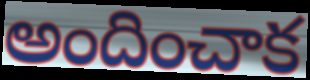
అందించాక